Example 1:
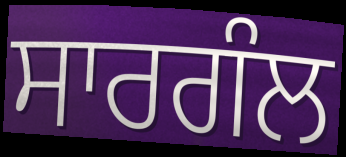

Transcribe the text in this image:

ਸਾਰਗੰਲ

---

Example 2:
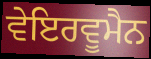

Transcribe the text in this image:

ਵੇਇਰਵੂਮੈਨ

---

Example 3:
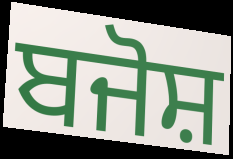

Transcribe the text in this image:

ਬਜੋਸ਼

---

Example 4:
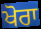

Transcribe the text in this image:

ਖੋਰਾ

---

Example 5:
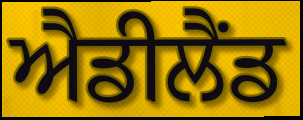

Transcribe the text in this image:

ਐਡੀਲੈਂਡ